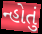
ન્હોતું